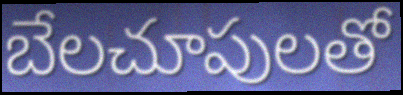
బేలచూపులతో